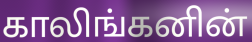
காலிங்கனின்